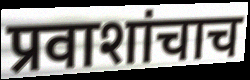
प्रवाशांचाच